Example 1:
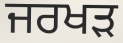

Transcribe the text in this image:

ਜਰਖੜ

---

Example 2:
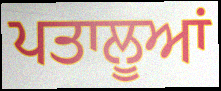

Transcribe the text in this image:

ਪਤਾਲੂਆਂ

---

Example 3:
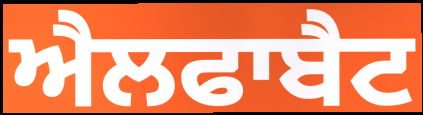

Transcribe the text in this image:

ਐਲਫਾਬੈਟ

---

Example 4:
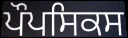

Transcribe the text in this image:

ਪੌਪਸਿਕਸ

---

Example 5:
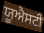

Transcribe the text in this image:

ਯੂਐਸਟੀ